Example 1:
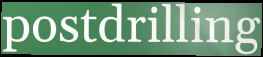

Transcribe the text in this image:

postdrilling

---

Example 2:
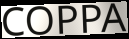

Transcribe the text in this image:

COPPA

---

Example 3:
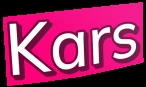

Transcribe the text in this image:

Kars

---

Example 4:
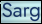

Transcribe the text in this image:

Sarg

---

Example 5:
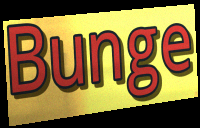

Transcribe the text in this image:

Bunge